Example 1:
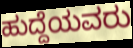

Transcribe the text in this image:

ಹುದ್ದೆಯವರು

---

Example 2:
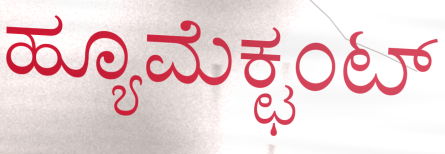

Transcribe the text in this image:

ಹ್ಯೂಮೆಕ್ಟಂಟ್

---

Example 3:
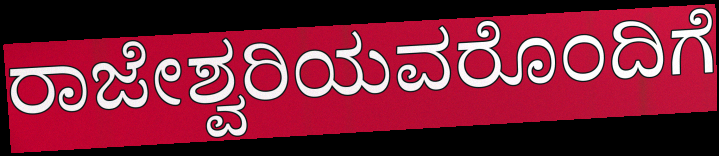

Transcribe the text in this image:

ರಾಜೇಶ್ವರಿಯವರೊಂದಿಗೆ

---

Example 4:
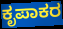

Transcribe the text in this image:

ಕೃಪಾಕರ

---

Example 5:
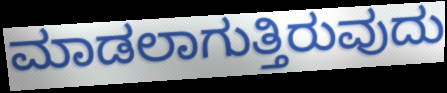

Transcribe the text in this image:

ಮಾಡಲಾಗುತ್ತಿರುವುದು